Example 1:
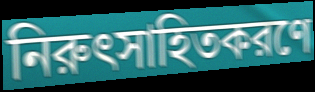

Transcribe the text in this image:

নিরুৎসাহিতকরণে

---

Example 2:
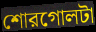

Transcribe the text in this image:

শোরগোলটা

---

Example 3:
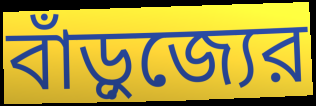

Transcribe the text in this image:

বাঁড়ুজ্যের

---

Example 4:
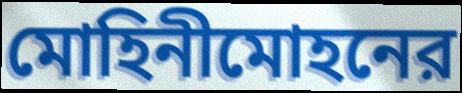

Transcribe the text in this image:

মোহিনীমোহনের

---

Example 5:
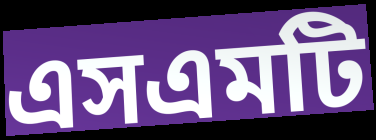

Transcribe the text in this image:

এসএমটি